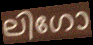
ലിഗോ